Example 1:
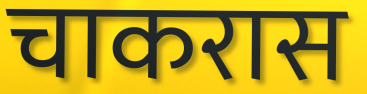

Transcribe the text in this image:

चाकरास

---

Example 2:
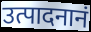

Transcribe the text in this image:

उत्पादनानं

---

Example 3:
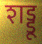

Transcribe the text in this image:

शड्डू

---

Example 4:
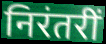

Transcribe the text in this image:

निरंतरीं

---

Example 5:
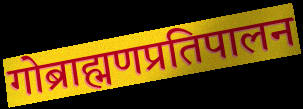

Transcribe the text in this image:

गोब्राह्मणप्रतिपालन